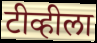
टीव्हीला